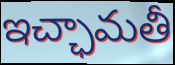
ఇచ్ఛామతీ